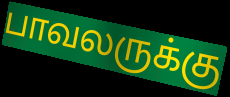
பாவலருக்கு